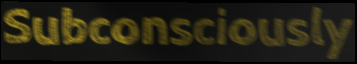
Subconsciously